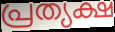
പ്രത്യക്ഷ